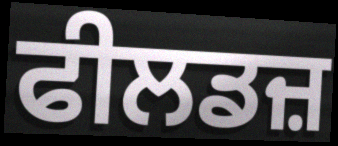
ਫੀਲਡਜ਼